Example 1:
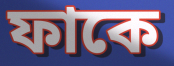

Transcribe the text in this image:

ফাকে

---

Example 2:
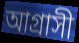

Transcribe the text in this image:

আগ্ৰাসী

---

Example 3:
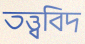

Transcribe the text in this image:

তত্ত্ববিদ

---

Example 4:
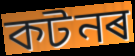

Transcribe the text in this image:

কটনৰ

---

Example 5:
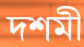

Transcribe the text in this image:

দশমী